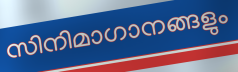
സിനിമാഗാനങ്ങളും